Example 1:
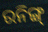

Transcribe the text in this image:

ରନିଙ୍ଗ୍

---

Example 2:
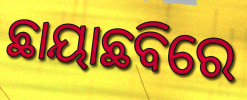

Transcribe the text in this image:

ଛାୟାଛବିରେ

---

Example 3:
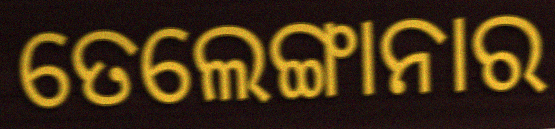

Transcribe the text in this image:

ତେଲେଙ୍ଗାନାର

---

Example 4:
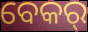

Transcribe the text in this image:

ବେକର୍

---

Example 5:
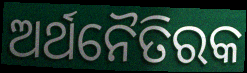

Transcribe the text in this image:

ଅର୍ଥନୈତିରକ